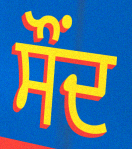
ਸੌਂਦ